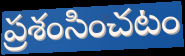
ప్రశంసించటం